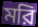
মরি